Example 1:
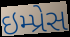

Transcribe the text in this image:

ઇમ્પ્રેસ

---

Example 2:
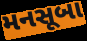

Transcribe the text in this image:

મનસૂબા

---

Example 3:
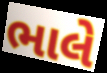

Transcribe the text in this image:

ભાલે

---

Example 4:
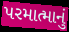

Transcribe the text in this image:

પરમાત્માનું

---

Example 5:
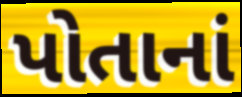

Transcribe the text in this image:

પોતાનાં